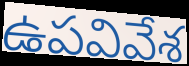
ఉపవివేశ